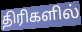
திரிகளில்